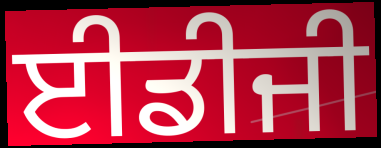
ਈਡੀਜੀ